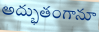
అద్భుతంగానూ